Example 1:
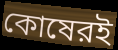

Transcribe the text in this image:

কোষেরই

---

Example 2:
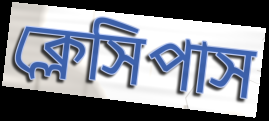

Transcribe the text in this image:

ক্লেসিপাস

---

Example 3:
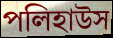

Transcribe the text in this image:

পলিহাউস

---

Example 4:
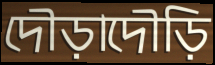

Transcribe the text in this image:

দৌড়াদৌড়ি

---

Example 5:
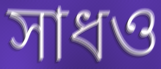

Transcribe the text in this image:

সাধও